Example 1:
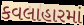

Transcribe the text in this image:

કવલાહારમાં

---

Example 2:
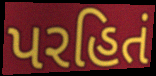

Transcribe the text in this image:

પરહિતં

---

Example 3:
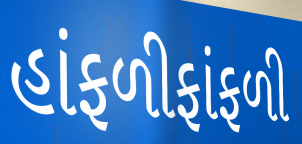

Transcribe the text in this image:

હાંફળીફાંફળી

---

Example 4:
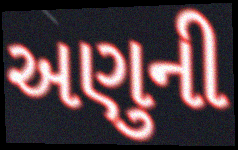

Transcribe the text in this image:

અણુની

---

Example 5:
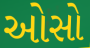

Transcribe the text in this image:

ઓસો